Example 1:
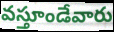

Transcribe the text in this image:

వస్తూండేవారు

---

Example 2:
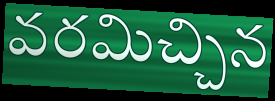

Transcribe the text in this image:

వరమిచ్చిన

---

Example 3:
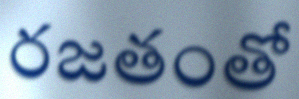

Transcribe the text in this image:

రజతంతో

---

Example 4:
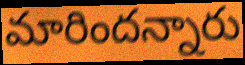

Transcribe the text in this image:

మారిందన్నారు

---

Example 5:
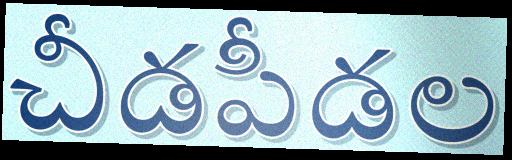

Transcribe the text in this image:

చీడపీడల